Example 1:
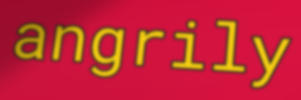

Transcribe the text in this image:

angrily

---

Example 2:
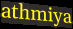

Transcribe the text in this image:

athmiya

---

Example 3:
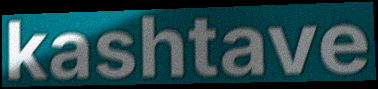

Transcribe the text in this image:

kashtave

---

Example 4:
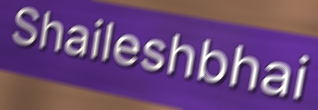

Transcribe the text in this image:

Shaileshbhai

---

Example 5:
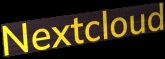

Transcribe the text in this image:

Nextcloud